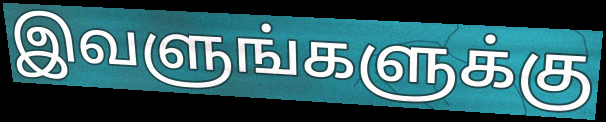
இவளுங்களுக்கு